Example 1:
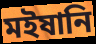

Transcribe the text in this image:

মইষানি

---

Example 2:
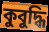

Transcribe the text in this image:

কুবুদ্ধি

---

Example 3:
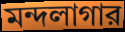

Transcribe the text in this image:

মন্দলাগার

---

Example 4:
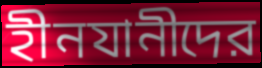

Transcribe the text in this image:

হীনযানীদের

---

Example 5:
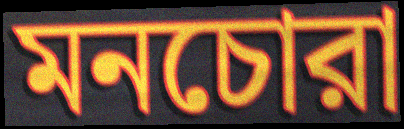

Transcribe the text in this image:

মনচোরা